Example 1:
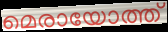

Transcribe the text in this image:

മെരായോത്ത്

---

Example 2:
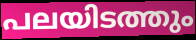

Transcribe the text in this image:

പലയിടത്തും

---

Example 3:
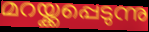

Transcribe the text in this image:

മറയ്ക്കപ്പെടുന്നു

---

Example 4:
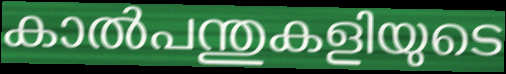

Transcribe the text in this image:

കാൽപന്തുകളിയുടെ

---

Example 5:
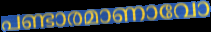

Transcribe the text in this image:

പണ്ടാരമാണാവോ